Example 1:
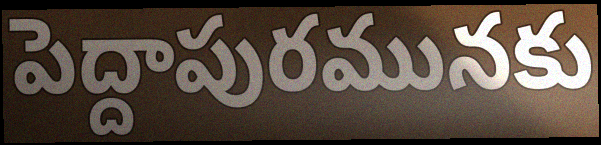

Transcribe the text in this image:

పెద్దాపురమునకు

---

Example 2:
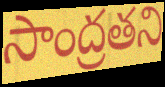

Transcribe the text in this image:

సాంద్రతని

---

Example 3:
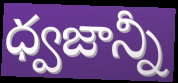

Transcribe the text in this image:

ధ్వజాన్నీ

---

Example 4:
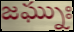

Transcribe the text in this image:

జఘ్నుః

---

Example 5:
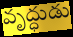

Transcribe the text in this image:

వృద్ధుడు